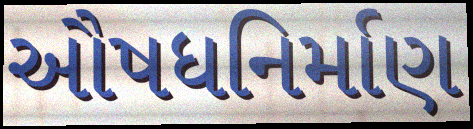
ઔષધનિર્માણ